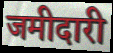
जमीदारी